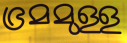
ഭ്രമമുള്ള